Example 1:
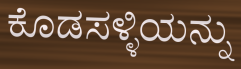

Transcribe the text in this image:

ಕೊಡಸಳ್ಳಿಯನ್ನು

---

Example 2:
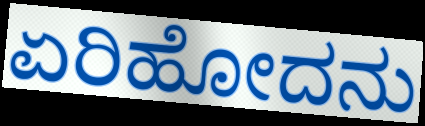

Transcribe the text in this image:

ಏರಿಹೋದನು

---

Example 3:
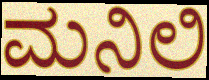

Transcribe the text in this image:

ಮನಿಲಿ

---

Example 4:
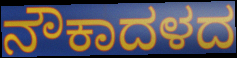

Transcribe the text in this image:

ನೌಕಾದಳದ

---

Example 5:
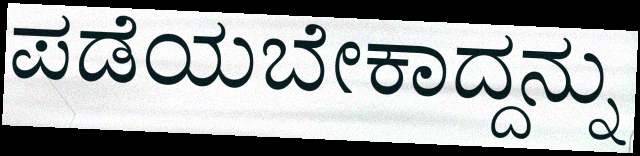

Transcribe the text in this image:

ಪಡೆಯಬೇಕಾದ್ದನ್ನು